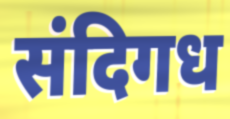
संदिगध